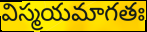
విస్మయమాగతః